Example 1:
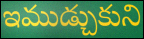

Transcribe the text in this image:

ఇముడ్చుకుని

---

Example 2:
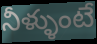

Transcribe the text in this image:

నీళ్ళుంటే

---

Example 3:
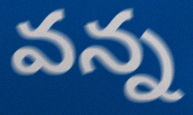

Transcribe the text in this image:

వన్న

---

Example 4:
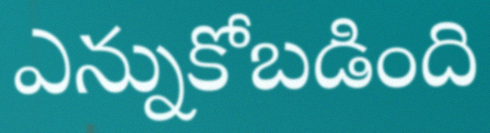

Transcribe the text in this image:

ఎన్నుకోబడింది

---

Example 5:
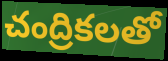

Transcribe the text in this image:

చంద్రికలతో